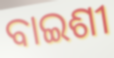
ବାଇଶୀ